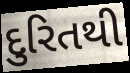
દુરિતથી